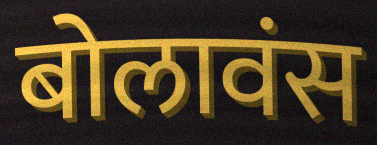
बोलावंस